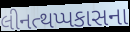
લીનત્થપ્પકાસના